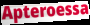
Apteroessa